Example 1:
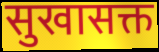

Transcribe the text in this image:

सुखासक्त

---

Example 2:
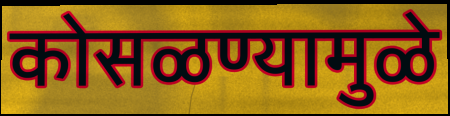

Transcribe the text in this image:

कोसळण्यामुळे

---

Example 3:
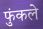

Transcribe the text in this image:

फुंकले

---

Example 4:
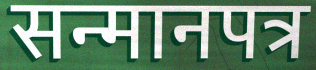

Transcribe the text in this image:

सन्मानपत्र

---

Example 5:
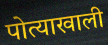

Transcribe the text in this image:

पोत्याखाली